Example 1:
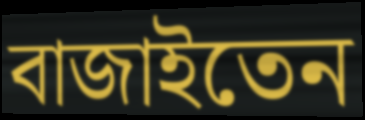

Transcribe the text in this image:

বাজাইতেন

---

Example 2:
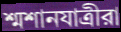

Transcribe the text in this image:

শ্মশানযাত্রীরা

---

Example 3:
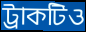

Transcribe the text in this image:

ট্রাকটিও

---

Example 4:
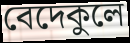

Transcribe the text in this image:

বেদেকুলে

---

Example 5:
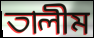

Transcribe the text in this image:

তালীম